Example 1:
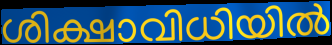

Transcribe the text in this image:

ശിക്ഷാവിധിയിൽ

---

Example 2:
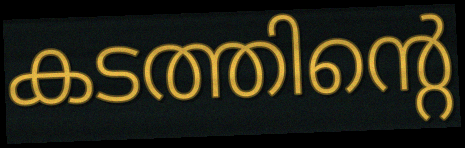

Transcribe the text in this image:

കടത്തിന്റെ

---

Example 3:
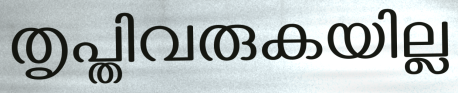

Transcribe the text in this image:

തൃപ്തിവരുകയില്ല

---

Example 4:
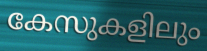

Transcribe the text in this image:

കേസുകളിലും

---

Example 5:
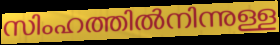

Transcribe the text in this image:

സിംഹത്തിൽനിന്നുള്ള